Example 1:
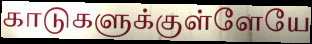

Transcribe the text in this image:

காடுகளுக்குள்ளேயே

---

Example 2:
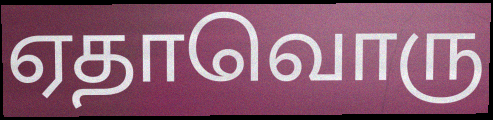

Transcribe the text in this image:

ஏதாவொரு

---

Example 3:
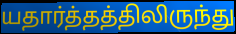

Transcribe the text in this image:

யதார்த்தத்திலிருந்து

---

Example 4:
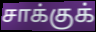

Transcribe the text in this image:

சாக்குக்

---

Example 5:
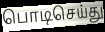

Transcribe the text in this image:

பொடிசெய்து